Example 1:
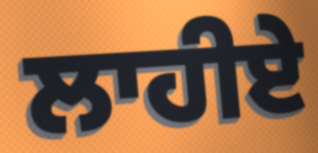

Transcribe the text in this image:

ਲਾਹੀਏ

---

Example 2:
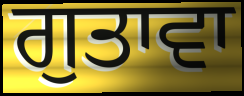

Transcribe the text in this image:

ਗੁਤਾਵਾ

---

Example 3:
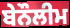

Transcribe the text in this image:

ਬੇਨੌਲੀਮ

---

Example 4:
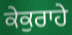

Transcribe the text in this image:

ਕੇਕੁਰਾਹੇ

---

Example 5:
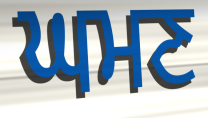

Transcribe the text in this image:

ਘਮਣ